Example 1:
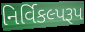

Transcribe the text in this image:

નિર્વિકલ્પરૂપ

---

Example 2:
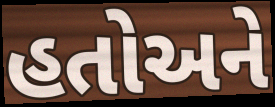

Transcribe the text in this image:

હતોઅને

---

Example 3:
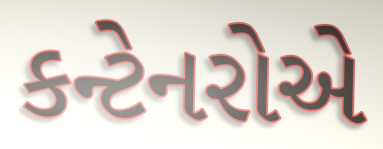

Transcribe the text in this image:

કન્ટેનરોએ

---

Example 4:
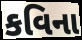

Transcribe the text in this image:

કવિના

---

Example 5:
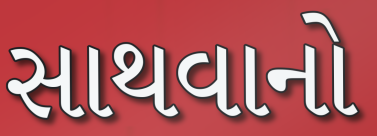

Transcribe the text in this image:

સાથવાનો